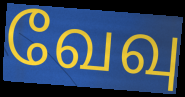
வேவு